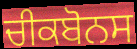
ਚੀਕਬੋਨਸ